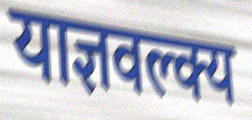
याज्ञवल्क्य